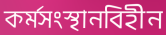
কর্মসংস্থানবিহীন